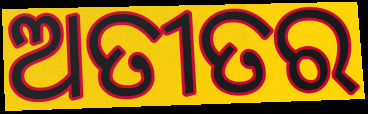
ଅତୀତର